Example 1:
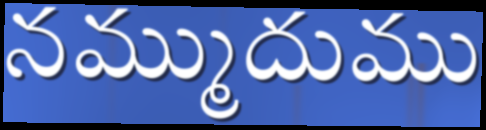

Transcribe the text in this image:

నమ్ముదుము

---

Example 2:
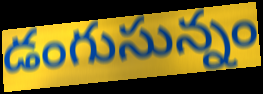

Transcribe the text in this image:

డంగుసున్నం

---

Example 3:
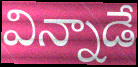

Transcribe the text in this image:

విన్నాడే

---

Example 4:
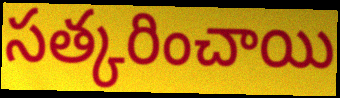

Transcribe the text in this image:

సత్కరించాయి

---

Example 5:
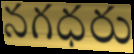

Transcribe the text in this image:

నగధరు